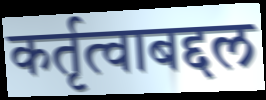
कर्तृत्वाबद्दल